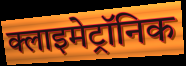
क्लाइमेट्रॉनिक